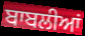
ਬਾਬਲੀਆਂ